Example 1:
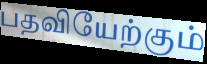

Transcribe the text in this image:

பதவியேற்கும்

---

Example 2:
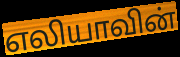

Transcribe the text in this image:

எலியாவின்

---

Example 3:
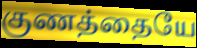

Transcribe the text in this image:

குணத்தையே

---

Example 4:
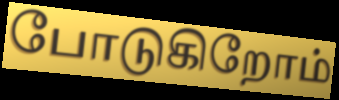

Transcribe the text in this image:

போடுகிறோம்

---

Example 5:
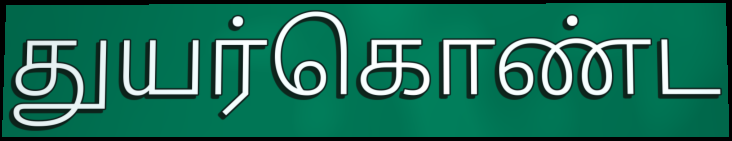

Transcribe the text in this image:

துயர்கொண்ட